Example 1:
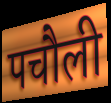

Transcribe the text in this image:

पचौली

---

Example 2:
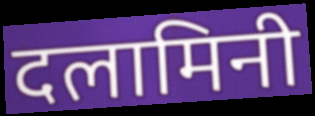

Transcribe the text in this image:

दलामिनी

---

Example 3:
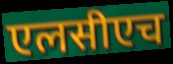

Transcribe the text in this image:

एलसीएच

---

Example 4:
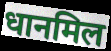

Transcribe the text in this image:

धानमिल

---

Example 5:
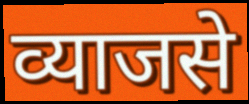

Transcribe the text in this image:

व्याजसे